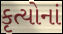
કૃત્યોનાં